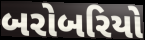
બરોબરિયો